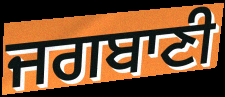
ਜਗਬਾਣੀ